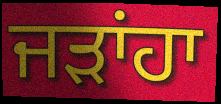
ਜੜਾਂਹਾ